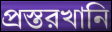
প্রস্তরখানি